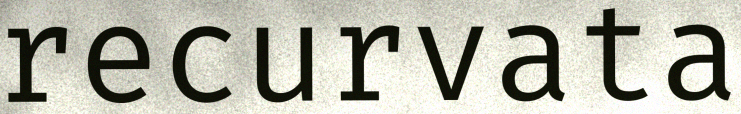
recurvata